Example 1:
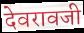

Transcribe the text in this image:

देवरावजी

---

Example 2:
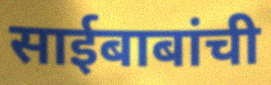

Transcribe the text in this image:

साईबाबांची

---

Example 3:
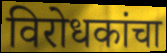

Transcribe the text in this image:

विरोधकांचा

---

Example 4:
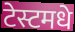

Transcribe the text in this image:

टेस्टमधे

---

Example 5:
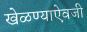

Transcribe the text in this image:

खेळण्याऐवजी